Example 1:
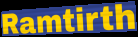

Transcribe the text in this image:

Ramtirth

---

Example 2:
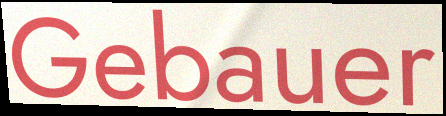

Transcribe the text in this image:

Gebauer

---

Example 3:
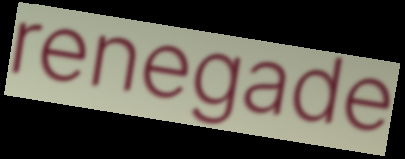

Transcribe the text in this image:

renegade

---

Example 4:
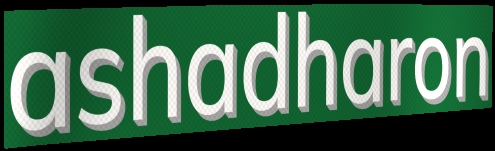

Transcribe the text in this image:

ashadharon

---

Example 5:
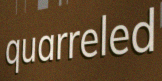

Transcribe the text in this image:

quarreled